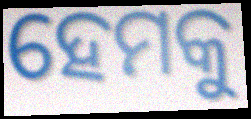
ହେମକୁ